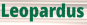
Leopardus